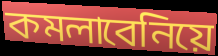
কমলাবেনিয়ে